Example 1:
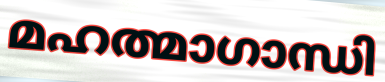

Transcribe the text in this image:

മഹത്മാഗാന്ധി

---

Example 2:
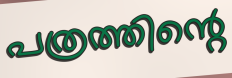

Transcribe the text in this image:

പത്രത്തിന്റെ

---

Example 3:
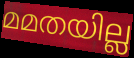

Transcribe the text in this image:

മമതയില്ല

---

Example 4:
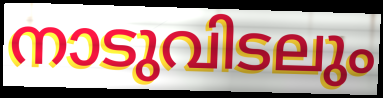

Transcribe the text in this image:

നാടുവിടലും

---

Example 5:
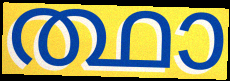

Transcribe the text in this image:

ത്ഥാ